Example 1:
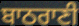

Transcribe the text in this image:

ਬਾਠਰਾਣੀ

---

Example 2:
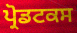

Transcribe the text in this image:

ਪ੍ਰੋਡਟਕਸ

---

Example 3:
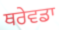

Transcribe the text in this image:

ਥਰੇਵਡਾ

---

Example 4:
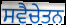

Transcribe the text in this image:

ਸਵੈਚੇਤਨ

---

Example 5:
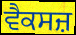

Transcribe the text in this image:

ਵੈਕਸਜ਼